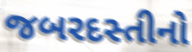
જબરદસ્તીનો